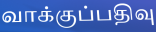
வாக்குப்பதிவு